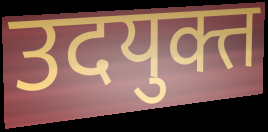
उदयुक्त